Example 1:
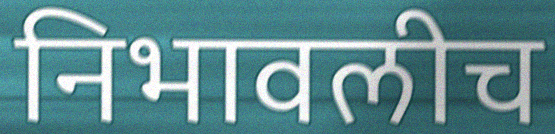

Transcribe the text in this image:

निभावलीच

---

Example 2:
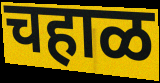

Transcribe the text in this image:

चहाळ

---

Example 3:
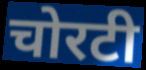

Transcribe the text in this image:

चोरटी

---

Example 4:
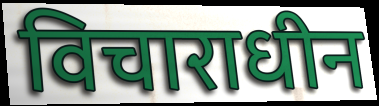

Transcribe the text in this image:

विचाराधीन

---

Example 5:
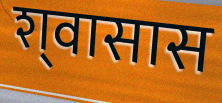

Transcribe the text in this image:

श्वासास